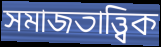
সমাজতাত্ত্বিক